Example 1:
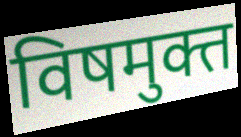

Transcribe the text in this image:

विषमुक्त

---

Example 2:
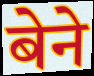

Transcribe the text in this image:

बेने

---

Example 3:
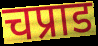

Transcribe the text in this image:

चप्राड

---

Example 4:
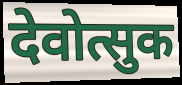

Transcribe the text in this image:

देवोत्सुक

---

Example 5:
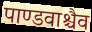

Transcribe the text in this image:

पाण्डवाश्चैव